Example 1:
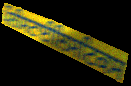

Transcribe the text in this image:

ਪੌਲੀਸਟਾਈਲਿਸਟਿਕਸ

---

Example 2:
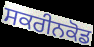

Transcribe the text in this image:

ਸਕਰੀਨਕੋਡ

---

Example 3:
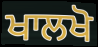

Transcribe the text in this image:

ਖਾਲਖੋ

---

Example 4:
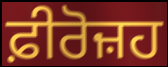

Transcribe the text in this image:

ਫ਼ੀਰੋਜ਼ਹ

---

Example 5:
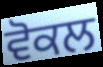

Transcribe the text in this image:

ਵੋਕਲ